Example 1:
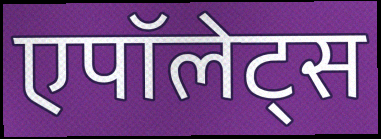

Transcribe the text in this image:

एपॉलेट्स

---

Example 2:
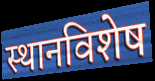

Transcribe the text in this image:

स्थानविशेष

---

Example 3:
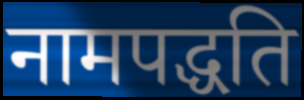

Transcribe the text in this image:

नामपद्धति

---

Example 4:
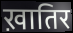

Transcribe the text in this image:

ख़ातिर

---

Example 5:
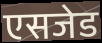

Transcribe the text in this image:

एसजेड